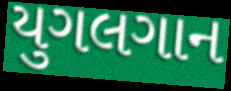
યુગલગાન